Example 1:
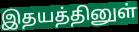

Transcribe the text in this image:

இதயத்தினுள்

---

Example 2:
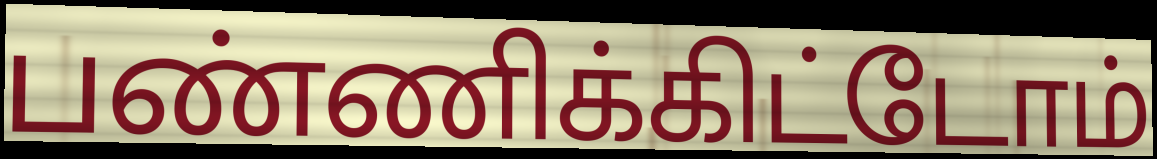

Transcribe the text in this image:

பண்ணிக்கிட்டோம்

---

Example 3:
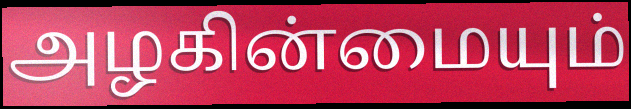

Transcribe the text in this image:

அழகின்மையும்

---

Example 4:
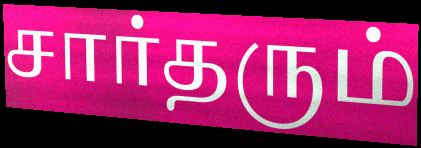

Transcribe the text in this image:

சார்தரும்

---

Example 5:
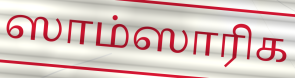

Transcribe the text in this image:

ஸாம்ஸாரிக